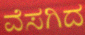
ವೆಸಗಿದ